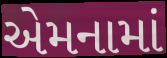
એમનામાં